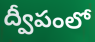
ద్వీపంలో